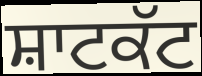
ਸ਼ਾਟਕੱਟ